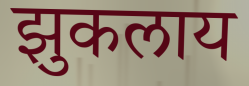
झुकलाय